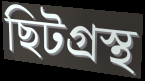
ছিটগ্রস্থ